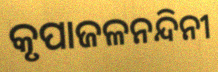
କୃପାଜଳନନ୍ଦିନୀ